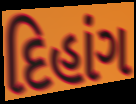
દિહાંગ